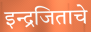
इन्द्रजिताचे